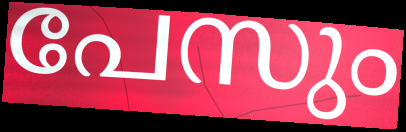
പേസും